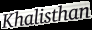
Khalisthan